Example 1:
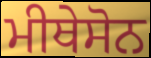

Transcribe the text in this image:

ਮੀਥੇਸੋਨ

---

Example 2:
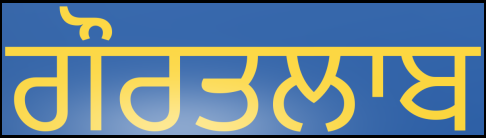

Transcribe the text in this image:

ਗੌਰਤਲਾਬ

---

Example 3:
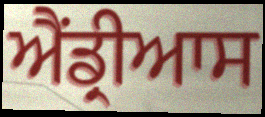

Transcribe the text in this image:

ਐਂਡ੍ਰੀਆਸ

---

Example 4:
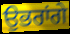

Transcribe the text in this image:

ਉਭਰਾਂਗੇ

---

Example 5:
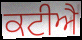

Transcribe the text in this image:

ਕਟੀਐ